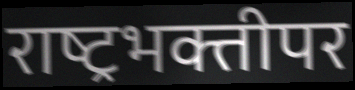
राष्ट्रभक्तीपर